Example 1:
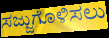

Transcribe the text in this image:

ಸಜ್ಜುಗೊಳಿಸಲು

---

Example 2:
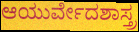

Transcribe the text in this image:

ಆಯುರ್ವೇದಶಾಸ್ತ್ರ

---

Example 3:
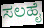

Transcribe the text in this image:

ಸಲಹೈ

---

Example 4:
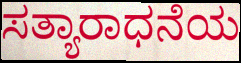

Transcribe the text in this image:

ಸತ್ಯಾರಾಧನೆಯ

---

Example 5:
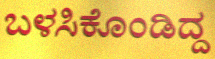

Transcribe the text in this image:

ಬಳಸಿಕೊಂಡಿದ್ದ